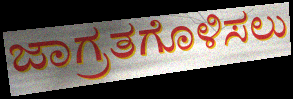
ಜಾಗ್ರತಗೊಳಿಸಲು